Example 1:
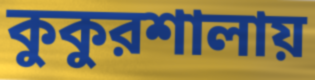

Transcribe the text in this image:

কুকুরশালায়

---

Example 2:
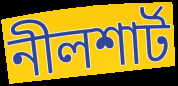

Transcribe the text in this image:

নীলশার্ট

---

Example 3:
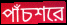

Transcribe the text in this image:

পাঁচশরে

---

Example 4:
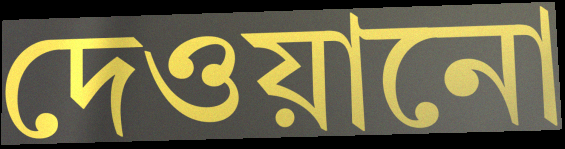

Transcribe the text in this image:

দেওয়ানো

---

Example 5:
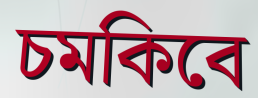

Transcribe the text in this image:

চমকিবে